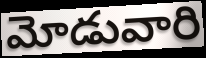
మోడువారి